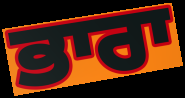
ਭਾਰਾ